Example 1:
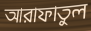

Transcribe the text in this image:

আরাফাতুল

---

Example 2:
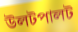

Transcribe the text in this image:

উলটপালট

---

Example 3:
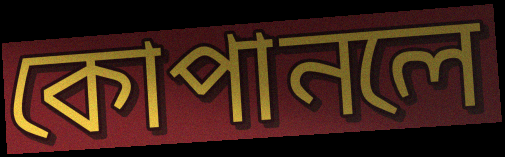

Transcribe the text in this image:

কোপানলে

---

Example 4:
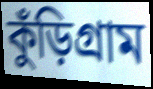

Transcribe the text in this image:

কুঁড়িগ্রাম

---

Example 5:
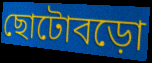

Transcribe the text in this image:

ছোটোবড়ো